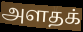
அளதக்